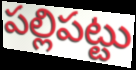
పల్లిపట్టు